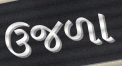
ઉજળા